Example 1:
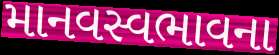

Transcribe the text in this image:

માનવસ્વભાવના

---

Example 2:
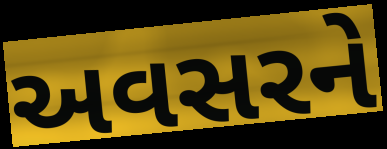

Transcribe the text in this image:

અવસરને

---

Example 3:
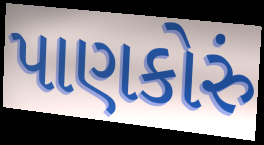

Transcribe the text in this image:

પાણકોરું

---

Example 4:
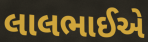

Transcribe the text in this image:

લાલભાઈએ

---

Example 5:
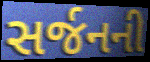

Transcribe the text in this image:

સર્જનની